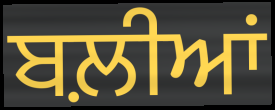
ਬਲ਼ੀਆਂ